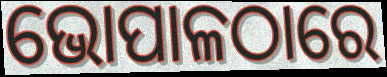
ଭୋପାଳଠାରେ